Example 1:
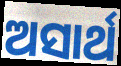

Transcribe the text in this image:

ଅସାର୍ଥ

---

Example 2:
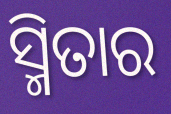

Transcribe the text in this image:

ସ୍ମିତାର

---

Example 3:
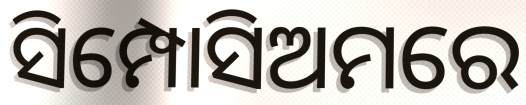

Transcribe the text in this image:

ସିମ୍ପୋସିଅମରେ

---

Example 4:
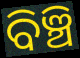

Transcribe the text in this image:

ବିଞ୍ଚି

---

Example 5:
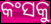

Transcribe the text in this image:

କଂସକୁ